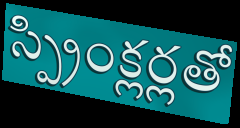
స్ప్రింక్లర్లతో